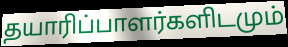
தயாரிப்பாளர்களிடமும்